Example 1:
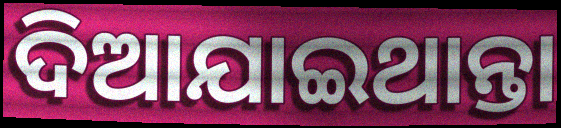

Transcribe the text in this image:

ଦିଆଯାଇଥାନ୍ତା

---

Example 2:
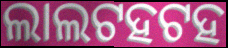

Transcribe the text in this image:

ଲାଲଟହଟହ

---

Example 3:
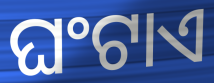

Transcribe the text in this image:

ଘଂଟାଏ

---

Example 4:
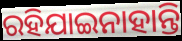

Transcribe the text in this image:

ରହିଯାଇନାହାନ୍ତି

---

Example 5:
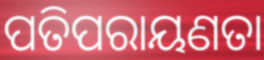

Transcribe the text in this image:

ପତିପରାୟଣତା